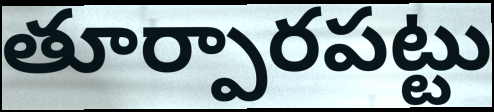
తూర్పారపట్టు